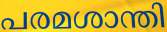
പരമശാന്തി